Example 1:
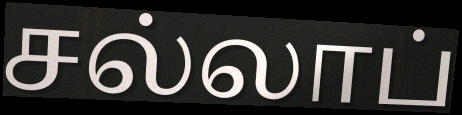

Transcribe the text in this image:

சல்லாப்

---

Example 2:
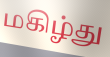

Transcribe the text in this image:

மகிழ்து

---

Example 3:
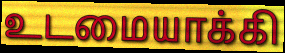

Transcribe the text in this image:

உடமையாக்கி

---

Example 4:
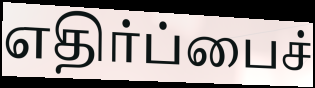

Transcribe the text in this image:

எதிர்ப்பைச்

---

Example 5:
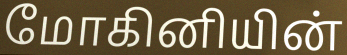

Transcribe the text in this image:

மோகினியின்